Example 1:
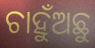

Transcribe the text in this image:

ଚାହୁଁଅଛୁ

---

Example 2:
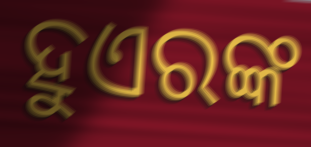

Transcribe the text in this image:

ହୁଏରଙ୍କ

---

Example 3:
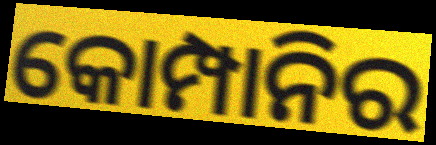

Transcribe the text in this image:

କୋମ୍ପାନିର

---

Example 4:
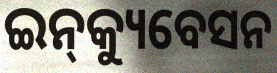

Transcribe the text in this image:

ଇନ୍‌କ୍ୟୁବେସନ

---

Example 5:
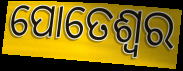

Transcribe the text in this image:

ପୋତେଶ୍ବର